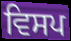
ਵਿਸਪ